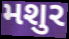
મશુર